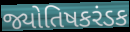
જ્યોતિષકરંડક